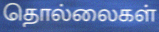
தொல்லைகள்